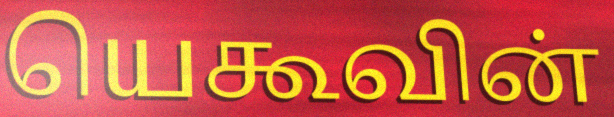
யெகூவின்